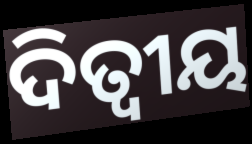
ଦିତ୍ୱୀୟ